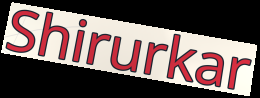
Shirurkar